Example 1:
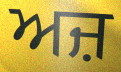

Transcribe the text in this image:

ਅਜ਼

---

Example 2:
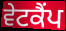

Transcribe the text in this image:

ਵੇਟਕੈਂਪ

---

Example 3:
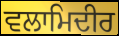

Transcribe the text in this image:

ਵਲਾਮਿਦੀਰ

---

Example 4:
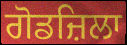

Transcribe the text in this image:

ਗੋਡਜ਼ਿਲਾ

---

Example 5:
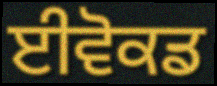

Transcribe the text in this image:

ਈਵੋਕਡ